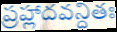
ప్రహ్లాదవన్దితః